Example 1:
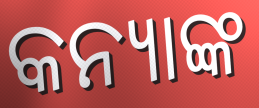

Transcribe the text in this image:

କନ୍ୟାଙ୍କ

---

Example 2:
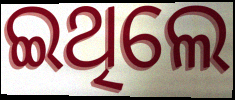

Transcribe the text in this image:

ଇଥିଲେ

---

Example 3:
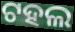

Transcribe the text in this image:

ଟହଲ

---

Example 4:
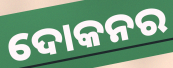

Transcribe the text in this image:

ଦୋକନର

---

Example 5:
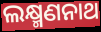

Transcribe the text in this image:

ଲକ୍ଷ୍ମଣନାଥ